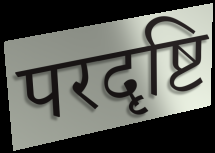
परदृष्टि